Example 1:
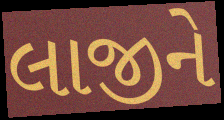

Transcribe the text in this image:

લાજીને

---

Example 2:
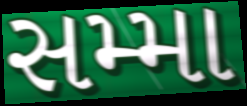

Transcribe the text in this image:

સમ્મા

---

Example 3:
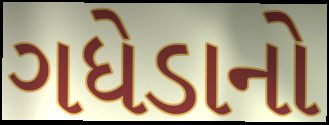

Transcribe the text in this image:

ગધેડાનો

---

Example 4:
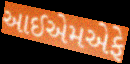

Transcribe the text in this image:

આઈએમએફે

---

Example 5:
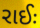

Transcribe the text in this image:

રાઈઃ